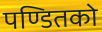
पण्डितको